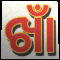
ଖାଁ